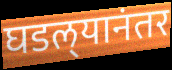
घडल्यानंतर